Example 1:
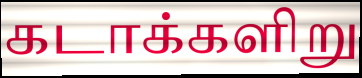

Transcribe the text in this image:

கடாக்களிறு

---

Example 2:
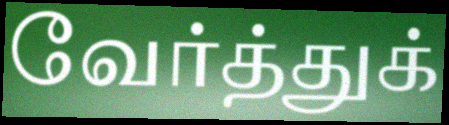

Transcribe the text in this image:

வேர்த்துக்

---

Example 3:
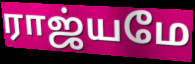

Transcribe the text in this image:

ராஜ்யமே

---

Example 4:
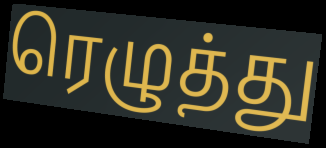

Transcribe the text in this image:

ரெழுத்து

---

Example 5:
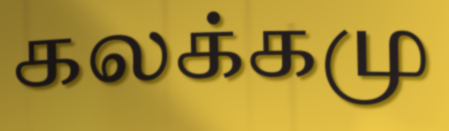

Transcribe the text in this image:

கலக்கமு